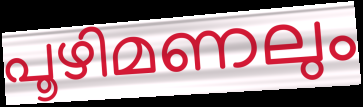
പൂഴിമണലും